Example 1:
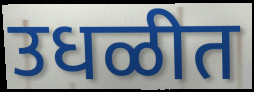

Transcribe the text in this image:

उधळीत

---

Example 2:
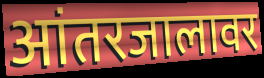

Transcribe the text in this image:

आंतरजालावर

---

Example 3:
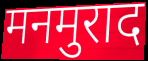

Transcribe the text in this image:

मनमुराद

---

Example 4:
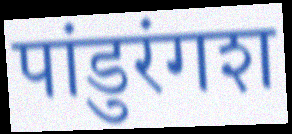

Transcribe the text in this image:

पांडुरंगश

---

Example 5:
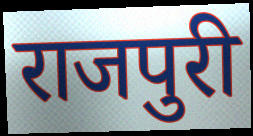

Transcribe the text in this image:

राजपुरी